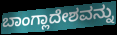
ಬಾಂಗ್ಲಾದೇಶವನ್ನು